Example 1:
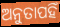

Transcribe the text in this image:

ଅନୁତାପହିଁ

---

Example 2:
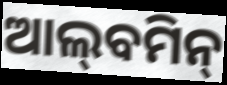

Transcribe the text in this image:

ଆଲ୍‌ବମିନ୍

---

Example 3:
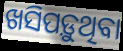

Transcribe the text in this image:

ଖସିପଡ଼ୁଥିବା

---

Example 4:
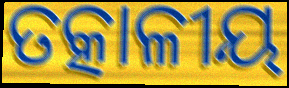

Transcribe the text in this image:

ତତ୍କାଳୀୟ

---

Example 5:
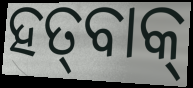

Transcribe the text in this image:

ହତ୍‌ବାକ୍